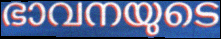
ഭാവനയുടെ